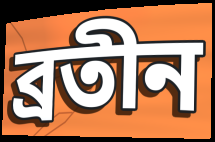
ব্রতীন